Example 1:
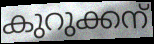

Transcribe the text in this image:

കുറുക്കന്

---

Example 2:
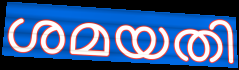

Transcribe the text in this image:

ശമയതി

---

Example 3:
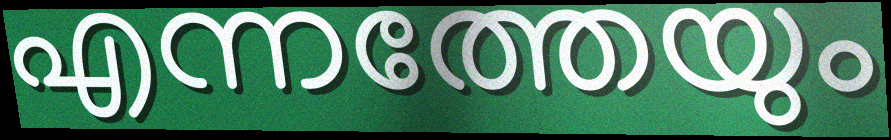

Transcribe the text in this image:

എന്നത്തേയും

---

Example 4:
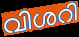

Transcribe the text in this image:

വിശറി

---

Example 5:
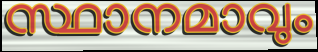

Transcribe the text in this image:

സ്ഥാനമാവും